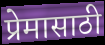
प्रेमासाठी